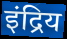
इंद्रिय